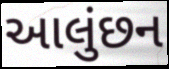
આલુંછન